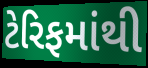
ટેરિફમાંથી